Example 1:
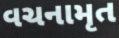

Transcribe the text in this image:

વચનામૃત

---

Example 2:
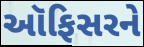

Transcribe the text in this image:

ઑફિસરને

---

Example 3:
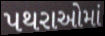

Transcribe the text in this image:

પથરાઓમાં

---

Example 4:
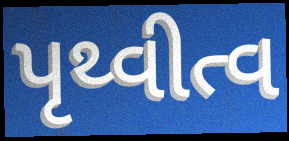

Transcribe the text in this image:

પૃથ્વીત્વ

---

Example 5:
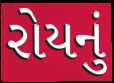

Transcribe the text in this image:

રોયનું